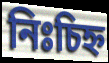
নিঃচিহ্ন